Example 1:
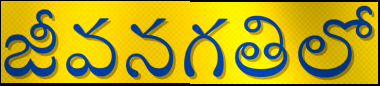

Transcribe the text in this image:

జీవనగతిలో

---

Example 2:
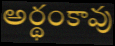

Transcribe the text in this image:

అర్థంకావు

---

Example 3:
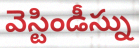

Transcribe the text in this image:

వెస్టిండీస్ను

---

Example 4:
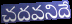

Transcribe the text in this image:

చదవనిదే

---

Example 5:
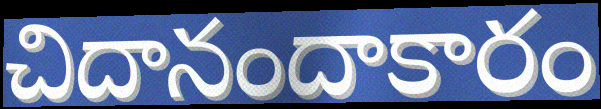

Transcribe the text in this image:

చిదానందాకారం